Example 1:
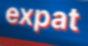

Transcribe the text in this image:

expat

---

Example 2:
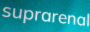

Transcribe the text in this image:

suprarenal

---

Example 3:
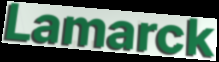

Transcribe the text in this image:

Lamarck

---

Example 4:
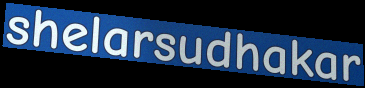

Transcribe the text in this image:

shelarsudhakar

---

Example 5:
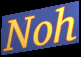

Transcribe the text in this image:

Noh